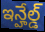
ఇన్హేల్డ్